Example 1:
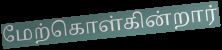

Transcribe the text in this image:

மேற்கொள்கின்றார்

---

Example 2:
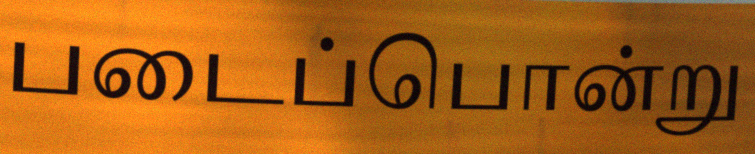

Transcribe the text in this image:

படைப்பொன்று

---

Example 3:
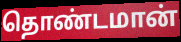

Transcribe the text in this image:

தொண்டமான்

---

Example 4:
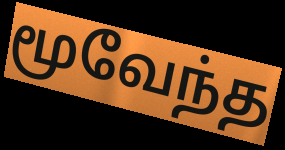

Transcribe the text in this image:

மூவேந்த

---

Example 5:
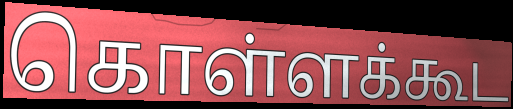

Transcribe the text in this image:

கொள்ளக்கூட